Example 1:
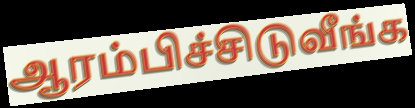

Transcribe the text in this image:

ஆரம்பிச்சிடுவீங்க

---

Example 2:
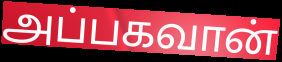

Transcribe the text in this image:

அப்பகவான்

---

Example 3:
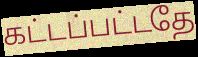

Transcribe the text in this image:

கட்டப்பட்டதே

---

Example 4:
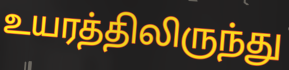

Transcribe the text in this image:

உயரத்திலிருந்து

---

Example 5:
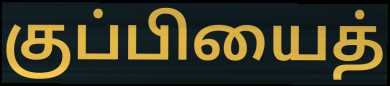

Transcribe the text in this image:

குப்பியைத்